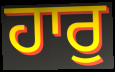
ਹਾਰੁ